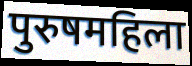
पुरुषमहिला